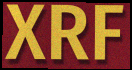
XRF